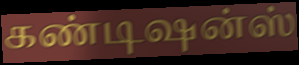
கண்டிஷன்ஸ்